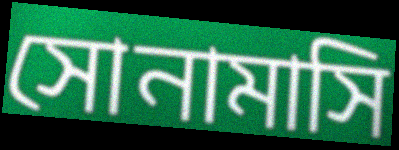
সোনামাসি